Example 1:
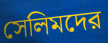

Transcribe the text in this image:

সেলিমদের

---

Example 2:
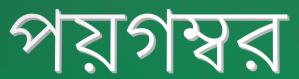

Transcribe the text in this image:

পয়গম্বর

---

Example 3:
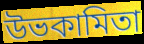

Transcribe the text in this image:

উভকামিতা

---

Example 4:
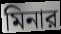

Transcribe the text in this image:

মিনার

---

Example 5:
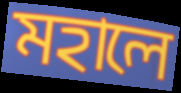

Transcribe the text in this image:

মহালে